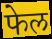
फेल